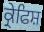
ਕ੍ਰੇਫਿਸ਼